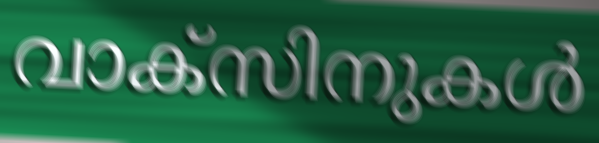
വാക്സിനുകൾ